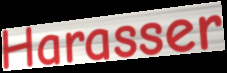
Harasser